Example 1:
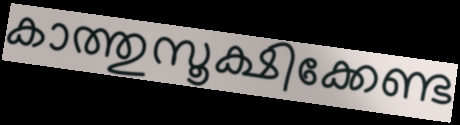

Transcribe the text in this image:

കാത്തുസൂക്ഷിക്കേണ്ട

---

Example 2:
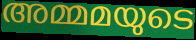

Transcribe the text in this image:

അമ്മമയുടെ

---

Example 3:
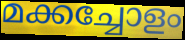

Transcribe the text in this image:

മക്കച്ചോളം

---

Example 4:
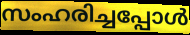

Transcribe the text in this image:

സംഹരിച്ചപ്പോൾ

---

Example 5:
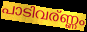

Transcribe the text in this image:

പാടിവര്ണ്ണം